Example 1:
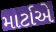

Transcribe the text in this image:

માર્ટાએ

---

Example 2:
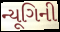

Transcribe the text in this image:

ન્યૂગિની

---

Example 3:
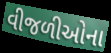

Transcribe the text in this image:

વીજળીઓના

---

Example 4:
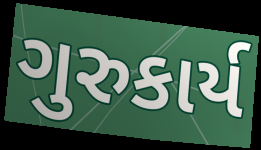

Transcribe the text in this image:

ગુરુકાર્ય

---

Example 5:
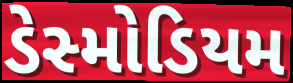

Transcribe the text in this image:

ડેસ્મોડિયમ